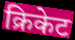
क्रिकेट